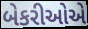
બેકરીઓએ